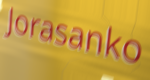
Jorasanko